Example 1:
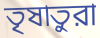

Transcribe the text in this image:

তৃষাতুরা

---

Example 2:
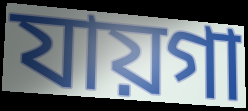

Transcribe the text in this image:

যায়গা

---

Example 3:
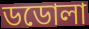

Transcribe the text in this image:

ডডোলা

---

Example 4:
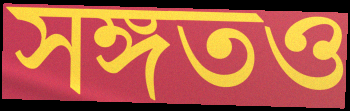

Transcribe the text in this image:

সঙ্গতও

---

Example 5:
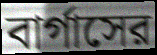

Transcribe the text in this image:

বার্গাসের